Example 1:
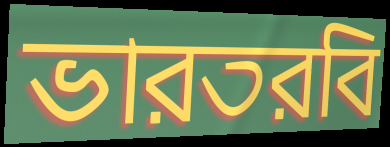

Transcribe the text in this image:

ভারতরবি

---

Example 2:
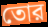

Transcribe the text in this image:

তোর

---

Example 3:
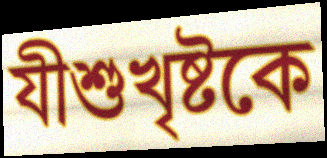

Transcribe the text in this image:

যীশুখৃষ্টকে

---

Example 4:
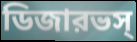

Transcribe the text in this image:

ডিজারভস্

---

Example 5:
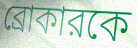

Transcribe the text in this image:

ব্রোকারকে